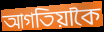
আগতিয়াকৈ